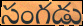
సంగడు